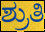
ಶ್ರುತಿ